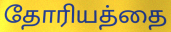
தோரியத்தை